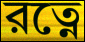
রত্নে